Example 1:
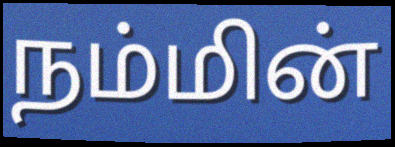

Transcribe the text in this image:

நம்மின்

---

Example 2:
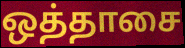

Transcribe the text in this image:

ஒத்தாசை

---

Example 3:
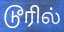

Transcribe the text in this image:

டூரில்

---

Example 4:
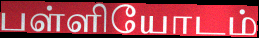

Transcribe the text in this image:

பள்ளியோடம்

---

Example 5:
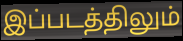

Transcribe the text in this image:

இப்படத்திலும்